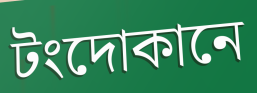
টংদোকানে